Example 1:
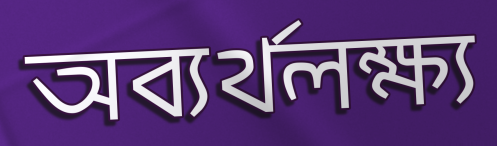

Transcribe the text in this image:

অব্যর্থলক্ষ্য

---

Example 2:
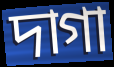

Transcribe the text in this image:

দাগা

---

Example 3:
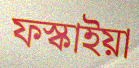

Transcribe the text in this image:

ফস্কাইয়া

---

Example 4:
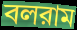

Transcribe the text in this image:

বলরাম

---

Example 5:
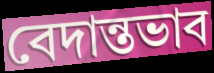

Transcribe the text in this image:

বেদান্তভাব